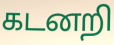
கடனறி